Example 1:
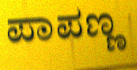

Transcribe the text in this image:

ಪಾಪಣ್ಣ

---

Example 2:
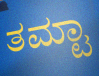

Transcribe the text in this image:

ತಮ್ಟಾ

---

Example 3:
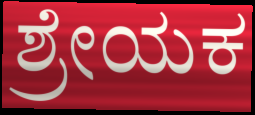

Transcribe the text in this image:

ಶ್ರೇಯಕ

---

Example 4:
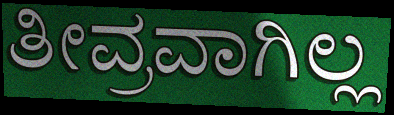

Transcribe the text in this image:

ತೀವ್ರವಾಗಿಲ್ಲ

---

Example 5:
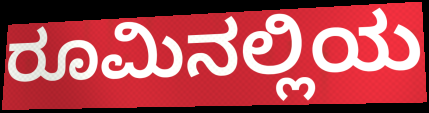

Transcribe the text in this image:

ರೂಮಿನಲ್ಲಿಯ